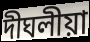
দীঘলীয়া